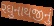
રઘુનાથજીનું